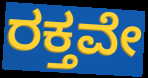
ರಕ್ತವೇ